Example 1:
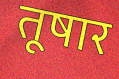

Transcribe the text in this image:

तूषार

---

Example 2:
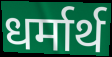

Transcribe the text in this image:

धर्मार्थ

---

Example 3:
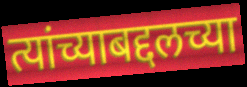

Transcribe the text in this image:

त्यांच्याबद्दलच्या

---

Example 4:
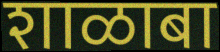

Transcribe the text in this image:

शाळाबा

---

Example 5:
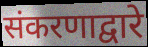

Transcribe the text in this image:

संकरणाद्वारे